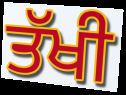
ਤੱਖੀ